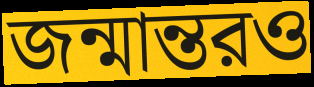
জন্মান্তরও